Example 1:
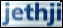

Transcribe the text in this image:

jethji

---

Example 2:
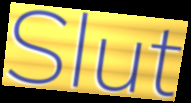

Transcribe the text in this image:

Slut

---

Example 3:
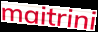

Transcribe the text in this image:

maitrini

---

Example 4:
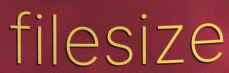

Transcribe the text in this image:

filesize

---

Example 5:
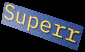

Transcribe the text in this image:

Superr